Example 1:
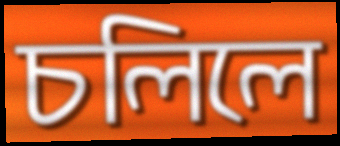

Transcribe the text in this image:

চলিলে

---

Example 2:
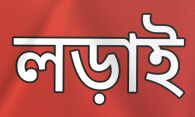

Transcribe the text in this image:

লড়াই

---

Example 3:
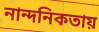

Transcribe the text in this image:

নান্দনিকতায়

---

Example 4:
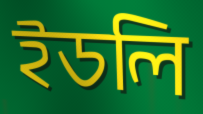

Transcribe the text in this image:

ইডলি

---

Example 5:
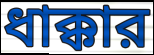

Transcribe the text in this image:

ধাক্কার